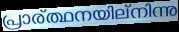
പ്രാര്ത്ഥനയില്നിന്നു